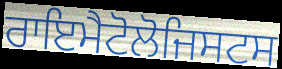
ਰਾਇਮੈਟੋਲੋਜਿਸਟਸ